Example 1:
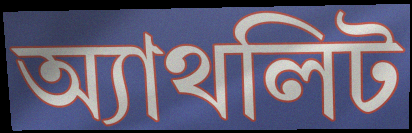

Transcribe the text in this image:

অ্যাথলিট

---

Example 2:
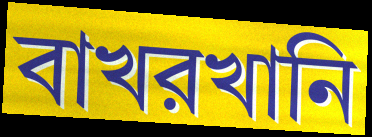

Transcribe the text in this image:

বাখরখানি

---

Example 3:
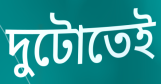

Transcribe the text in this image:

দুটোতেই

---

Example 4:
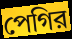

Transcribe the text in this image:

পেগির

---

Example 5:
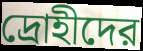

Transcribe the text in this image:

দ্রোহীদের